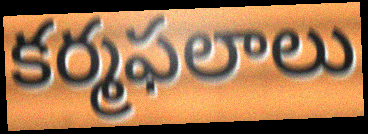
కర్మఫలాలు